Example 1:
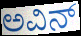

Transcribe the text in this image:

ಅವಿನ್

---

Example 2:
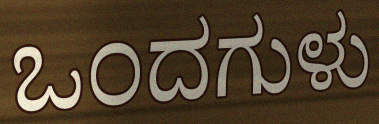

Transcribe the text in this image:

ಒಂದಗುಳು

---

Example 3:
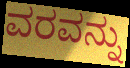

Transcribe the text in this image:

ವರವನ್ನು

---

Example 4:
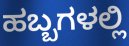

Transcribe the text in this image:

ಹಬ್ಬಗಳಲ್ಲಿ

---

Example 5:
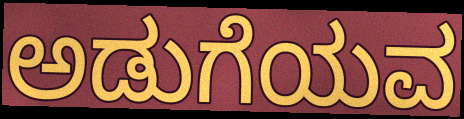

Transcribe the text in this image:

ಅಡುಗೆಯವ